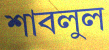
শাবলুল